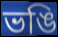
ভঙি